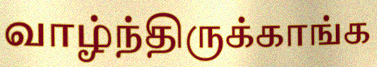
வாழ்ந்திருக்காங்க